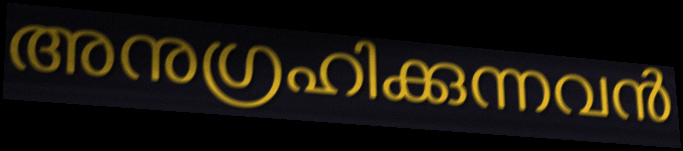
അനുഗ്രഹിക്കുന്നവൻ